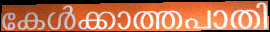
കേൾക്കാത്തപാതി